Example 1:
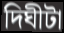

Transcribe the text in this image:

দিঘীটা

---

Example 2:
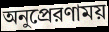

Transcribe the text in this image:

অনুপ্রেরণাময়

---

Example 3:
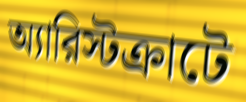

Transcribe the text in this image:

অ্যারিস্টক্রাটে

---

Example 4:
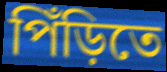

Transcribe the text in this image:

পিঁড়িতে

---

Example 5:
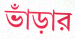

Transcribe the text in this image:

ভাঁড়ার